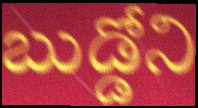
బుడ్డోని